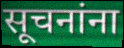
सूचनांना